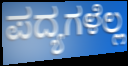
ಪದ್ಯಗಳೆಲ್ಲ